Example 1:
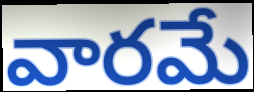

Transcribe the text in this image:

వారమే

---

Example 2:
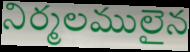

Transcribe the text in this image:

నిర్మలములైన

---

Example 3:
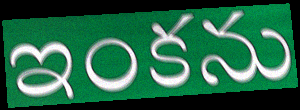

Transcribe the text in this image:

ఇంకను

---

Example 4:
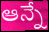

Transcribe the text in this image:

ఆన్నే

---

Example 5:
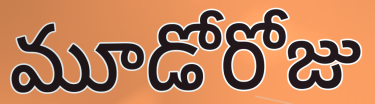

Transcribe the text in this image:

మూడోరోజు